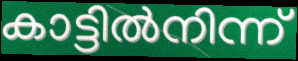
കാട്ടിൽനിന്ന്